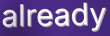
already